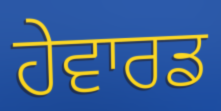
ਹੇਵਾਰਡ